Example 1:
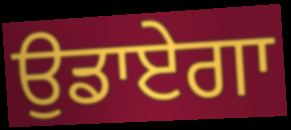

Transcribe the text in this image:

ਉਡਾਏਗਾ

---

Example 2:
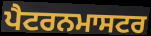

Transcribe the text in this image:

ਪੈਟਰਨਮਾਸਟਰ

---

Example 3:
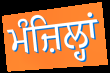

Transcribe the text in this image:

ਮੰਜ਼ਿਲ੍ਹਾਂ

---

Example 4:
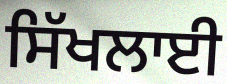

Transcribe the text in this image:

ਸਿੱਖਲਾਈ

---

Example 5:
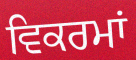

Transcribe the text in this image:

ਵਿਕਰਮਾਂ